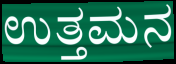
ಉತ್ತಮನ